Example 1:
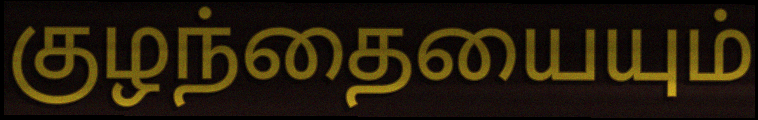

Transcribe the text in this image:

குழந்தையையும்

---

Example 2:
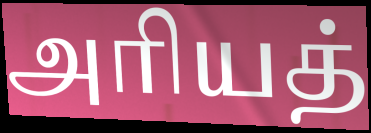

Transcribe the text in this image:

அரியத்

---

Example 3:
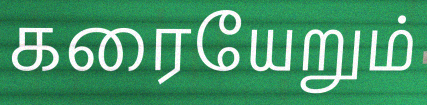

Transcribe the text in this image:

கரையேறும்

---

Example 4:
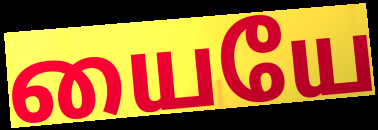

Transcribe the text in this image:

யையே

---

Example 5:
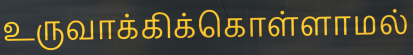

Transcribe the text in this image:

உருவாக்கிக்கொள்ளாமல்